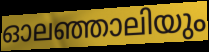
ഓലഞ്ഞാലിയും